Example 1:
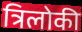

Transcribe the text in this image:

त्रिलोकी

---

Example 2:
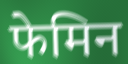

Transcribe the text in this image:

फेमिन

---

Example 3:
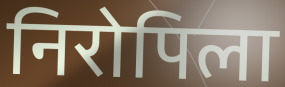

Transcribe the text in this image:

निरोपिला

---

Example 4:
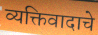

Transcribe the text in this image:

व्यक्तिवादाचे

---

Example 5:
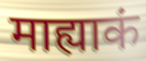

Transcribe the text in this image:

माह्याकं